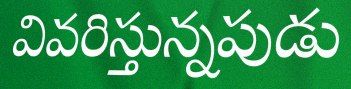
వివరిస్తున్నపుడు